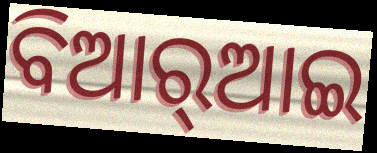
ବିଆର୍‌ଆଇ